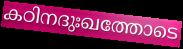
കഠിനദുഃഖത്തോടെ